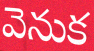
వెనుక